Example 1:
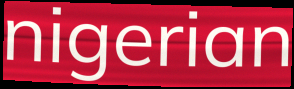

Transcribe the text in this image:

nigerian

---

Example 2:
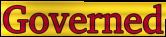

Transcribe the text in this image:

Governed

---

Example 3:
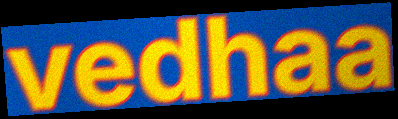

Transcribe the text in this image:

vedhaa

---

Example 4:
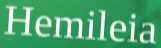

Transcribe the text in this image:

Hemileia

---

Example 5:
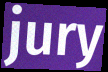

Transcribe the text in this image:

jury